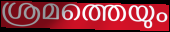
ശ്രമത്തെയും